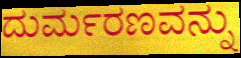
ದುರ್ಮರಣವನ್ನು